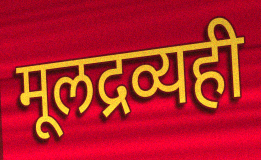
मूलद्रव्यही